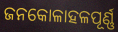
ଜନକୋଳାହଳପୂର୍ଣ୍ଣ